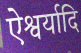
ऐश्वर्यादि